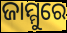
ଜାମ୍ମୁରେ